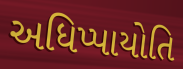
અધિપ્પાયોતિ